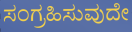
ಸಂಗ್ರಹಿಸುವುದೇ